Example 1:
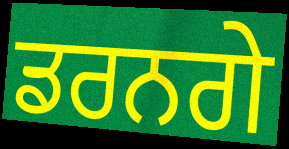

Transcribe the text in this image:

ਡਰਨਗੇ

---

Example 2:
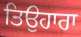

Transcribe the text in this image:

ਤਿਉਹਾਰਾ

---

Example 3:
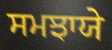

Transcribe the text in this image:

ਸਮਝਾਯੇ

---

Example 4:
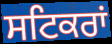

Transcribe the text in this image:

ਸਟਿਕਰਾਂ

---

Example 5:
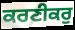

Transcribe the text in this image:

ਕਰਣੀਕਰੁ